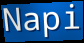
Napi